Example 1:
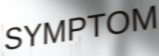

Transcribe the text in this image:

SYMPTOM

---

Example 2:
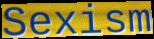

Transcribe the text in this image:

Sexism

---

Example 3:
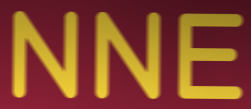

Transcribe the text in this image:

NNE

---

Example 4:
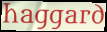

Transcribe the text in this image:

haggard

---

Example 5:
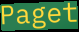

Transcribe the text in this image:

Paget